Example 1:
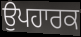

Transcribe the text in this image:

ਉਪਹਾਰਕ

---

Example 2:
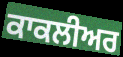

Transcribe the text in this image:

ਕਾਕਲੀਅਰ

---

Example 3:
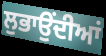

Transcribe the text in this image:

ਲੁਭਾਉਂਦੀਆਂ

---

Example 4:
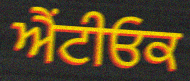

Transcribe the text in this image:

ਐਂਟੀਓਕ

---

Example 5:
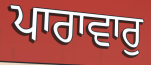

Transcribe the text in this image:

ਪਾਰਾਵਾਰੁ